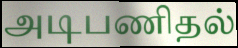
அடிபணிதல்